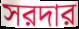
সরদার